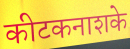
कीटकनाशके